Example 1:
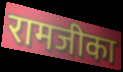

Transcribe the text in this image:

रामजीका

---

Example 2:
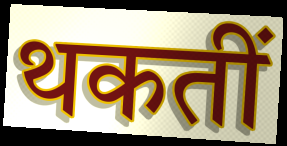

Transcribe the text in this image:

थकतीं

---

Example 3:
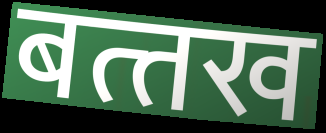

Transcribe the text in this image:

बत्‍तख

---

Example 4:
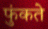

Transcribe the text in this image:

फुंकते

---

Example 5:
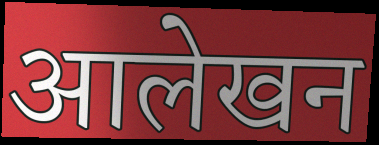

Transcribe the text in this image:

आलेखन